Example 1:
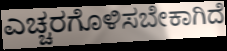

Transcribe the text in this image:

ಎಚ್ಚರಗೊಳಿಸಬೇಕಾಗಿದೆ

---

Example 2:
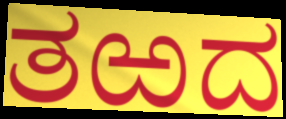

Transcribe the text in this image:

ತಱದ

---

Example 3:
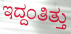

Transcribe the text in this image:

ಇದ್ದಂತಿತ್ತು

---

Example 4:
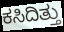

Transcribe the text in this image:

ಕಸಿದಿತ್ತು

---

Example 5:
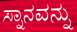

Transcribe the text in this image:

ಸ್ನಾನವನ್ನು